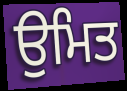
ਉਮਿਤ